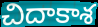
చిదాకాశ